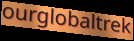
ourglobaltrek